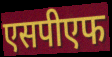
एसपीएफ